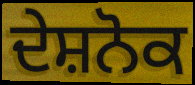
ਦੇਸ਼ਨੋਕ